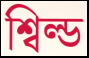
শ্বিল্ড